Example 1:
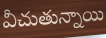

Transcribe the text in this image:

వీచుతున్నాయి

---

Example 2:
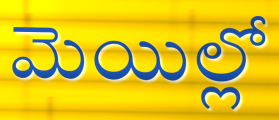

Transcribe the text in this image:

మెయిల్లో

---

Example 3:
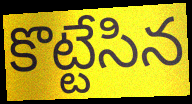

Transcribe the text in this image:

కొట్టేసిన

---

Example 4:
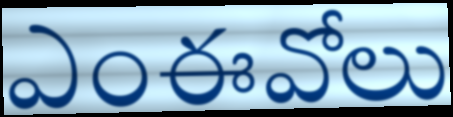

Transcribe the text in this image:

ఎంఈవోలు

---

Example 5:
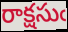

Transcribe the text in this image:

రాక్షసుఁ